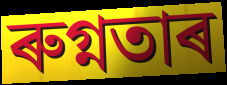
ৰুগ্নতাৰ